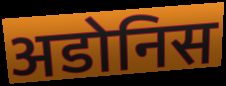
अडोनिस